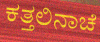
ಕತ್ತಲಿನಾಚೆ